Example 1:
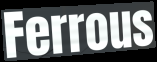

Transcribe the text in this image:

Ferrous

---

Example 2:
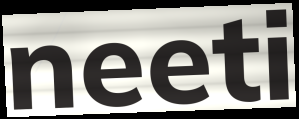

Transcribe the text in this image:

neeti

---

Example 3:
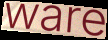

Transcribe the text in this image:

ware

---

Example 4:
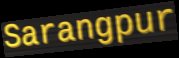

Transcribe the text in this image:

Sarangpur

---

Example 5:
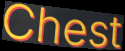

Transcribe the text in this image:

Chest